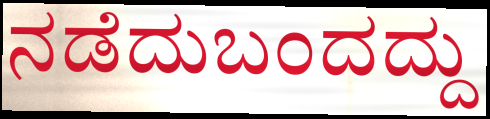
ನಡೆದುಬಂದದ್ದು